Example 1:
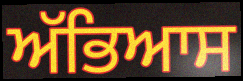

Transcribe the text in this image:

ਅੱਭਿਆਸ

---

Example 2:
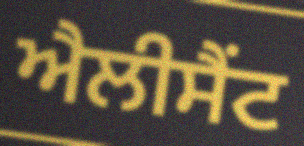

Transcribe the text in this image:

ਐਲੀਸੈਂਟ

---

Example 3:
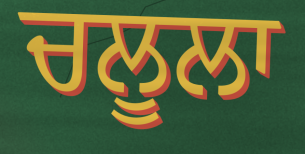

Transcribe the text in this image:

ਚਲੂਲਾ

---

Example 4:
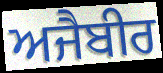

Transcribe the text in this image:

ਅਜੈਬੀਰ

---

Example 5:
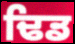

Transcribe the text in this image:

ਢਿਡ